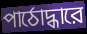
পাঠোদ্ধারে